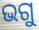
ଭଗୁ